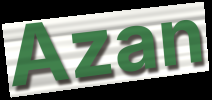
Azan